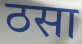
ठसा